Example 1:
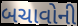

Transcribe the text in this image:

બચાવોની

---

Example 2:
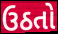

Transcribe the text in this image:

ઉઠતો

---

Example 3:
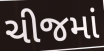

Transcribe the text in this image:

ચીજમાં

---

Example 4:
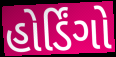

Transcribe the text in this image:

હોર્ડિંગો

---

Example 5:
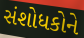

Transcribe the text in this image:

સંશોધકોને